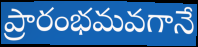
ప్రారంభమవగానే